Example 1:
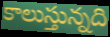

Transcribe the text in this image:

కాలుస్తున్నది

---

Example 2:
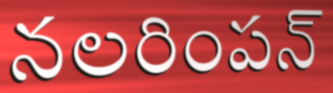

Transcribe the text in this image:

నలరింపన్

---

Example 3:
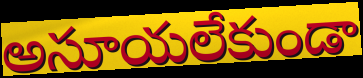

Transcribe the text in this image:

అసూయలేకుండా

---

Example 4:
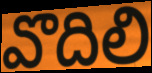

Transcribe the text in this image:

వొదిలి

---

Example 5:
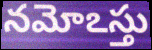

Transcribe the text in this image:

నమోఽస్తు